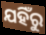
ଯହିଁରୁ